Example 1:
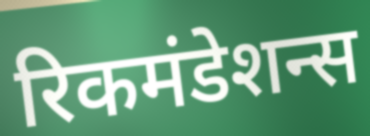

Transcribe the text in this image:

रिकमंडेशन्स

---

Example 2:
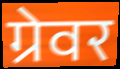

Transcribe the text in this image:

ग्रेवर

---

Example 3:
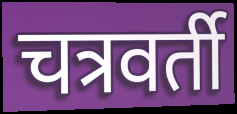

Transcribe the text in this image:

चत्रवर्ती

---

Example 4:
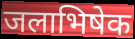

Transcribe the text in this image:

जलाभिषेक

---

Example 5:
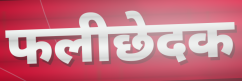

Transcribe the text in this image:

फलीछेदक